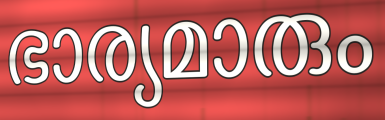
ഭാര്യമാരും